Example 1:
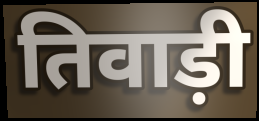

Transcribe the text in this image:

तिवाड़ी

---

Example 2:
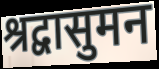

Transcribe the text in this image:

श्रद्वासुमन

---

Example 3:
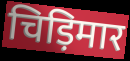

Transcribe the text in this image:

चिड़िमार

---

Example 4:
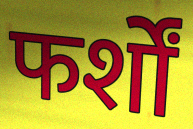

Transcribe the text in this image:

फर्शों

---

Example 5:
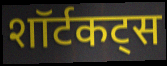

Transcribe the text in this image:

शॉर्टकट्स